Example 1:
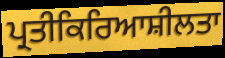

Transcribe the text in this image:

ਪ੍ਰਤੀਕਿਰਿਆਸ਼ੀਲਤਾ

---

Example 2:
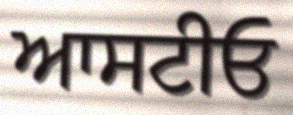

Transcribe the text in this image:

ਆਸਟੀਓ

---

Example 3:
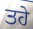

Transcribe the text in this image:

ਤਹੇ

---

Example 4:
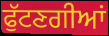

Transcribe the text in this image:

ਫੁੱਟਣਗੀਆਂ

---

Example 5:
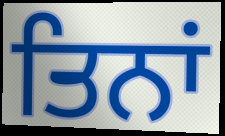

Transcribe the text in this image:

ਤਿਨਾਂ